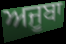
ਅਜੂਬਾ